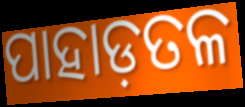
ପାହାଡ଼ତଳ